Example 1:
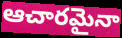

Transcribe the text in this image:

ఆచారమైనా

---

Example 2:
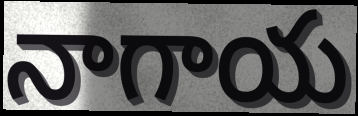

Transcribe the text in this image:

నాగాయ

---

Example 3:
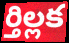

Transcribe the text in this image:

ర్తిల్లక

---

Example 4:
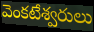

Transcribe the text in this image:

వెంకటేశ్వరులు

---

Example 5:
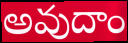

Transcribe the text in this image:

అవుదాం